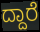
ದ್ದಾರೆ